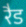
रैड